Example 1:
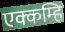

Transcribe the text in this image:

एक्कम्हि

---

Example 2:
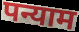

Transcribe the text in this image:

पन्याम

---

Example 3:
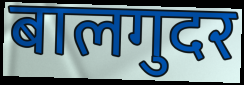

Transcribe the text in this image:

बालगुदर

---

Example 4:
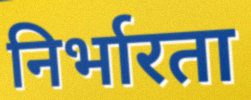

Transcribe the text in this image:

निर्भारता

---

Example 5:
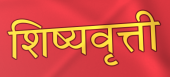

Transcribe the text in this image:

शिष्यवृत्ती